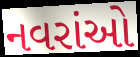
નવરાંઓ